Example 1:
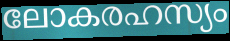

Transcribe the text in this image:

ലോകരഹസ്യം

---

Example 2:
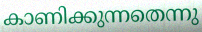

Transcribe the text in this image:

കാണിക്കുന്നതെന്നു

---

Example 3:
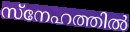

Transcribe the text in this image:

സ്നേഹത്തിൽ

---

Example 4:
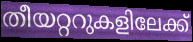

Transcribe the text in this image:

തീയറ്ററുകളിലേക്ക്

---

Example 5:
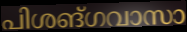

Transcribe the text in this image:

പിശങ്ഗവാസാ